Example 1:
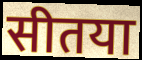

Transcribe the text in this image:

सीतया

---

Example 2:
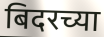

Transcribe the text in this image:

बिदरच्या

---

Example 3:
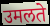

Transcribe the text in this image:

उमलते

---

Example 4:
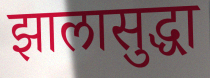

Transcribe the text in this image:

झालासुद्धा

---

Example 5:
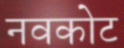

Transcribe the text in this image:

नवकोट